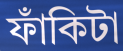
ফাঁকিটা